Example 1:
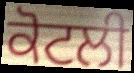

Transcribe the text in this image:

ਕੋਟਲੀ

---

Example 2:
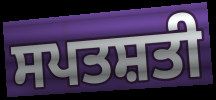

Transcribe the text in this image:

ਸਪਤਸ਼ਤੀ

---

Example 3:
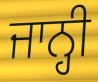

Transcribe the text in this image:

ਜਾਨ੍ਹੀ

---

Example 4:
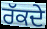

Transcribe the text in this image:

ਰੱਕਦੇ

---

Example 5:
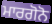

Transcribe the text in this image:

ਮਾਰਗੋਨੋ